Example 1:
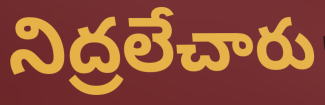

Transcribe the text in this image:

నిద్రలేచారు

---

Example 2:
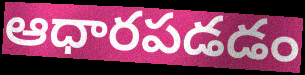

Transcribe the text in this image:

ఆధారపడడం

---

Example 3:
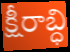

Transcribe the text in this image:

క్షీరాబ్ధి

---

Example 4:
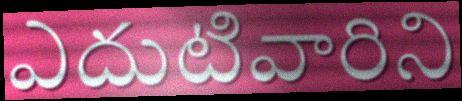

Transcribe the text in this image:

ఎదుటివారిని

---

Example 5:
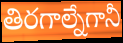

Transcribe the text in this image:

తిరగాల్నేగానీ